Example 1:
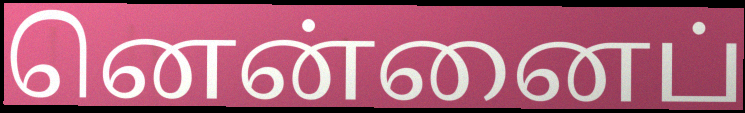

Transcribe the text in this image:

னென்னைப்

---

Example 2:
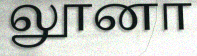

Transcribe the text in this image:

லூனா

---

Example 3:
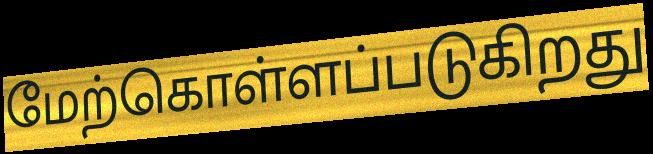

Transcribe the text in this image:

மேற்கொள்ளப்படுகிறது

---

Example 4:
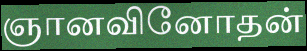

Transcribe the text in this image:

ஞானவினோதன்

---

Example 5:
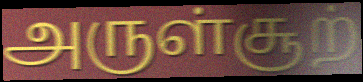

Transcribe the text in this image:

அருள்சூற்